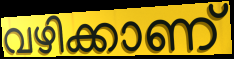
വഴിക്കാണ്